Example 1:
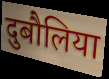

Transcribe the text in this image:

दुबौलिया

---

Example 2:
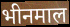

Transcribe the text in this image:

भीनमाल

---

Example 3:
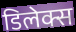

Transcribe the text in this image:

डिलेक्स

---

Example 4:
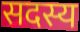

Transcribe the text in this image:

सदस्य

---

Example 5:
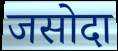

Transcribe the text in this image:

जसोदा